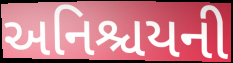
અનિશ્ચયની